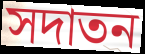
সদাতন